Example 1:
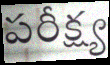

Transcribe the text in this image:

పరీక్ష్య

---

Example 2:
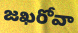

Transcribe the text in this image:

జఖరోవా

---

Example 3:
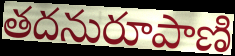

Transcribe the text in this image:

తదనురూపాణి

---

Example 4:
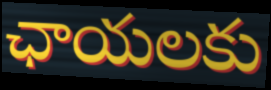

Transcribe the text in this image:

ఛాయలకు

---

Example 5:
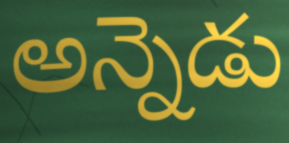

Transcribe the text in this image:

అన్నెడు